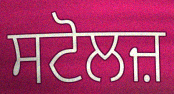
ਸਟੋਲਜ਼